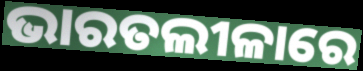
ଭାରତଲୀଳାରେ